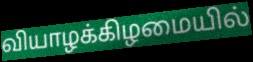
வியாழக்கிழமையில்